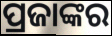
ପ୍ରଜାଙ୍କର